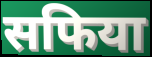
सफिया